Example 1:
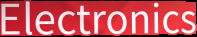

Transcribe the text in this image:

Electronics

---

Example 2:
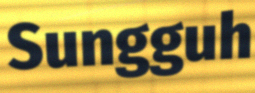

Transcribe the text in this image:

Sungguh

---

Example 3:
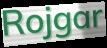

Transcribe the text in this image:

Rojgar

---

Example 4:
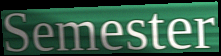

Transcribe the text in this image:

Semester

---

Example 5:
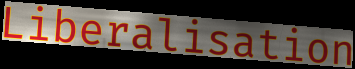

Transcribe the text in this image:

Liberalisation